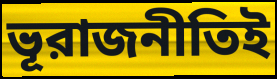
ভূরাজনীতিই